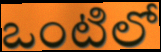
ఒంటిలో